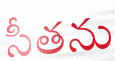
సీతను